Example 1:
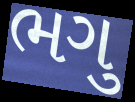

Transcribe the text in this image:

ભગુ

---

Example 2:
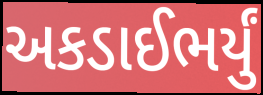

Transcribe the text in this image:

અકડાઈભર્યું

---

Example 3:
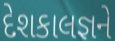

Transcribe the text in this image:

દેશકાલજ્ઞને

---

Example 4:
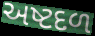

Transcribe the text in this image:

અષ્ટદળ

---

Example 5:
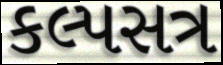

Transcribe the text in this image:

કલ્પસત્ર